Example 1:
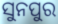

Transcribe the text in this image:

ସୁନପୁର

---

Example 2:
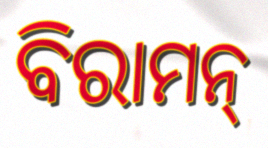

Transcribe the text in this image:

ବିରାମନ୍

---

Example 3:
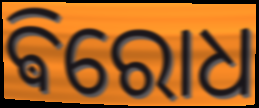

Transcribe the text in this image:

ଵିରୋଧ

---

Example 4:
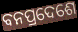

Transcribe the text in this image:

ବନପ୍ରଦେଶେ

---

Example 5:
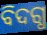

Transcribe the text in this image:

ବିଦଗ୍ଧ